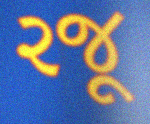
રજૂ